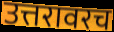
उत्तरावरच